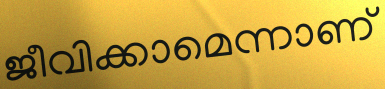
ജീവിക്കാമെന്നാണ്